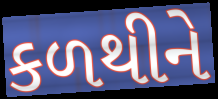
કળથીને